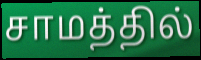
சாமத்தில்